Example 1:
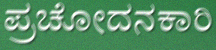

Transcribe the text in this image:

ಪ್ರಚೋದನಕಾರಿ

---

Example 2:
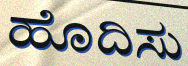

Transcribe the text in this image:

ಹೊದಿಸು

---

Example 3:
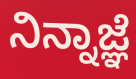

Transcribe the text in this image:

ನಿನ್ನಾಜ್ಞೆ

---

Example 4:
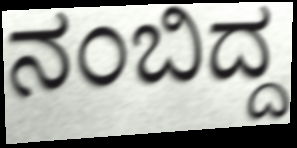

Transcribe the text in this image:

ನಂಬಿದ್ದ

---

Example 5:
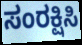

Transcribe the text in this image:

ಸಂರಕ್ಷಿಸಿ